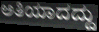
ಅತಿಯಾದದ್ದು